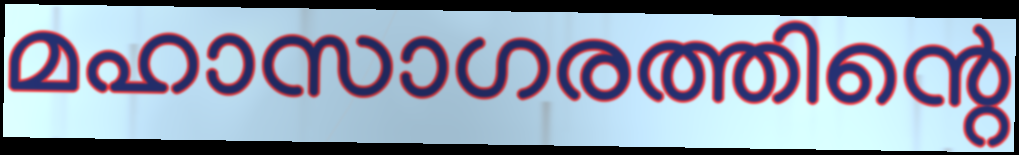
മഹാസാഗരത്തിന്റെ